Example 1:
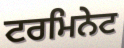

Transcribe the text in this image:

ਟਰਮਿਨੇਟ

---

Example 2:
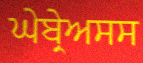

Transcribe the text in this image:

ਘੇਬ੍ਰੇਅਸਸ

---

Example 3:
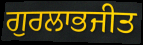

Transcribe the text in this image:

ਗੁਰਲਾਭਜੀਤ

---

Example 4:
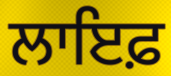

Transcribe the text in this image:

ਲਾਇਫ਼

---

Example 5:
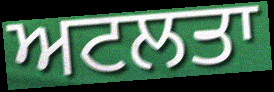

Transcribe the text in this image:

ਅਟਲਤਾ